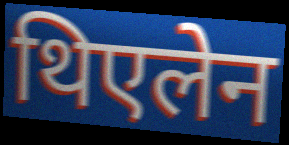
थिएलेन